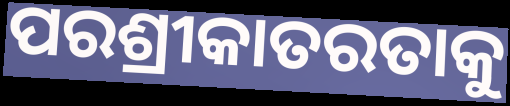
ପରଶ୍ରୀକାତରତାକୁ